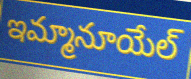
ఇమ్మానూయేల్